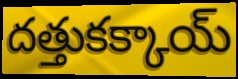
దత్తుకక్కాయ్